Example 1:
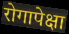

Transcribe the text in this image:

रोगापेक्षा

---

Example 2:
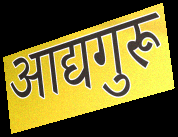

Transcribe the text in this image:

आद्यगुरू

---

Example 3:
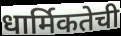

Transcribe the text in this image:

धार्मिकतेची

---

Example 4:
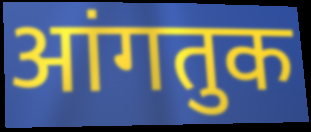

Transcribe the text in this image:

आंगतुक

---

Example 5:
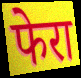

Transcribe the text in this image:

फेरा